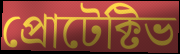
প্রোটেক্টিভ